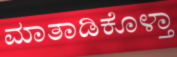
ಮಾತಾಡಿಕೊಳ್ತಾ